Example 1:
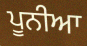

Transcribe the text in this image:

ਪੂਨੀਆ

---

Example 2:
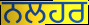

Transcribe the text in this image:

ਨਲਹਰ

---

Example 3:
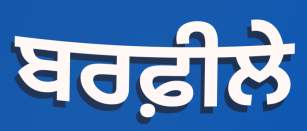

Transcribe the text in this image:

ਬਰਫ਼ੀਲੇ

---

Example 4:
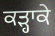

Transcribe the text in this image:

ਕੜ੍ਹਾਕੇ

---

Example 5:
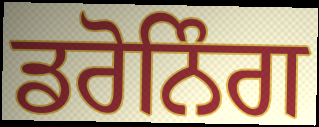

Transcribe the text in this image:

ਡਰੋਨਿੰਗ